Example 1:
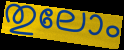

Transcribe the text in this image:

തുലോം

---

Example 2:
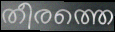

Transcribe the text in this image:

തീരത്തെ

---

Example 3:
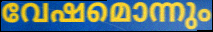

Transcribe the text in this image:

വേഷമൊന്നും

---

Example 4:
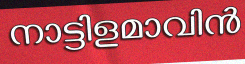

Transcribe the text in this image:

നാട്ടിളമാവിൻ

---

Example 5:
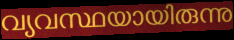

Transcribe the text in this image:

വ്യവസ്ഥയായിരുന്നു